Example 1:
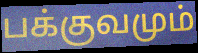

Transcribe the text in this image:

பக்குவமும்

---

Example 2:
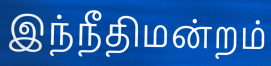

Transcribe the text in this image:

இந்நீதிமன்றம்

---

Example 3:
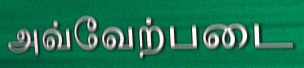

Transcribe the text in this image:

அவ்வேற்படை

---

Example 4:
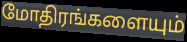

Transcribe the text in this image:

மோதிரங்களையும்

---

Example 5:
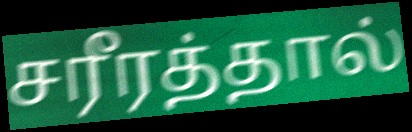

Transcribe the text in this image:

சரீரத்தால்